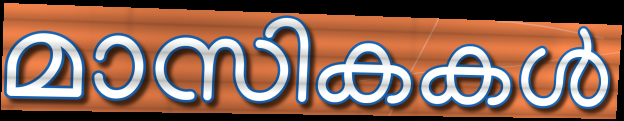
മാസികകൾ